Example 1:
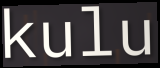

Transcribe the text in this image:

kulu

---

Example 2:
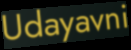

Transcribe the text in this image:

Udayavni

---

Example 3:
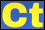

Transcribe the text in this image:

Ct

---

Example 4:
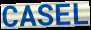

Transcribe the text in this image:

CASEL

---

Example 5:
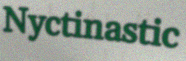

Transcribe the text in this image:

Nyctinastic